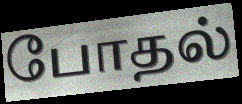
போதல்